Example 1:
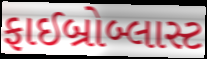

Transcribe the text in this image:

ફાઈબ્રોબ્લાસ્ટ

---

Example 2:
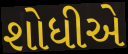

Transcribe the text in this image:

શોધીએ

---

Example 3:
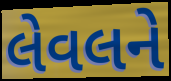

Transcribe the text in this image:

લેવલને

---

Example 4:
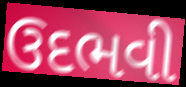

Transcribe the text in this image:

ઉદભવી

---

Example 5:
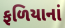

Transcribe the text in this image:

ફળિયાનાં